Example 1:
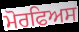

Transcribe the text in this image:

ਮੋਰਫਿਅਸ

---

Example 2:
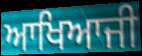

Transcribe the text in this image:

ਆਖਿਆਜੀ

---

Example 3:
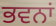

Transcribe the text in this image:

ਭਵਨਾਂ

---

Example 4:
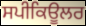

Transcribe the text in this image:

ਸਪੀਕਿਊਲਰ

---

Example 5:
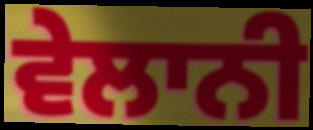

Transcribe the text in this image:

ਵੇਲਾਨੀ